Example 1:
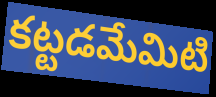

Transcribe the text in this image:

కట్టడమేమిటి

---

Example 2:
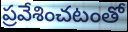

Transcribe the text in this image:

ప్రవేశించటంతో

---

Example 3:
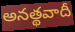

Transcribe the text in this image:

అనత్థవాదీ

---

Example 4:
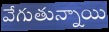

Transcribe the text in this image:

వేగుతున్నాయి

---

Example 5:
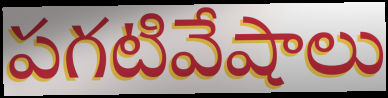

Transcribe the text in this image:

పగటివేషాలు